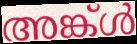
അങ്ക്ൾ